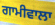
ਗਾਮੀਵਾਲਾ